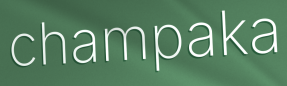
champaka